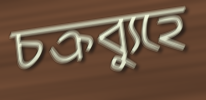
চক্রব্যুহে